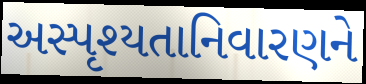
અસ્પૃશ્યતાનિવારણને